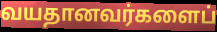
வயதானவர்களைப்